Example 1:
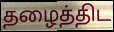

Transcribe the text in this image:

தழைத்திட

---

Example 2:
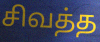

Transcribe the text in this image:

சிவத்த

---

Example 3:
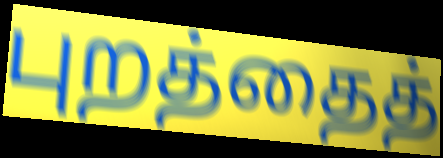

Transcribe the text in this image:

புறத்தைத்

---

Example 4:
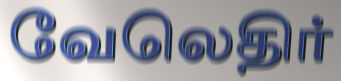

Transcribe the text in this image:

வேலெதிர்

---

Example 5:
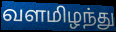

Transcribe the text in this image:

வளமிழந்து